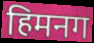
हिमनग